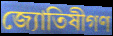
জ্যোতিষীগণ